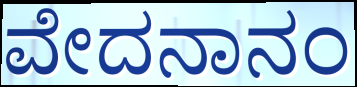
ವೇದನಾನಂ